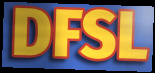
DFSL